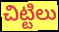
చిట్టిలు